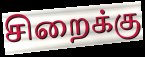
சிறைக்கு